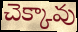
చెక్కావు